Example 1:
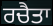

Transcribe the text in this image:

ਰਚੈਤਾ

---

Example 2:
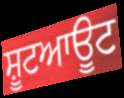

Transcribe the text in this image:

ਸ਼ੂਟਆਊਟ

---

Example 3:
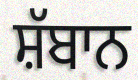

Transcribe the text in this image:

ਸ਼ੱਬਾਨ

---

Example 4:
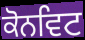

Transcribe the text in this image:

ਕੋਨਵਿਟ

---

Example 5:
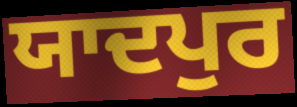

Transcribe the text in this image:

ਯਾਦਪੁਰ